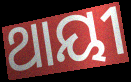
ଥାୟୀ